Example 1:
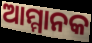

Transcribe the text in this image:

ଆମ୍ମାନକ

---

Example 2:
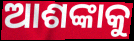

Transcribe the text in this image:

ଆଶଙ୍କାକୁ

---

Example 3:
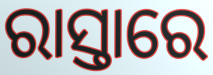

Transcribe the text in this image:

ରାସ୍ତାରେ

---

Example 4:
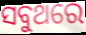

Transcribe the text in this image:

ସବୁଥରେ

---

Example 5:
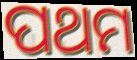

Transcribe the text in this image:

ପଥମ